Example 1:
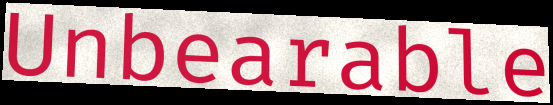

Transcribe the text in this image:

Unbearable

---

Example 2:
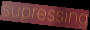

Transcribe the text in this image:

supressing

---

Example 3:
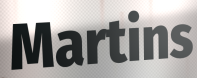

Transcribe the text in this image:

Martins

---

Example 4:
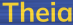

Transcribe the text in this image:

Theia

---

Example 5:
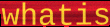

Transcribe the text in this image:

whatis